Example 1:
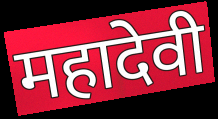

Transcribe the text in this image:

महादेवी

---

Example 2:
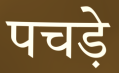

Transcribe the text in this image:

पचड़े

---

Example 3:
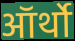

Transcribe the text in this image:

ऑर्थो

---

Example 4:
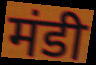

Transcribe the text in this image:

मंडी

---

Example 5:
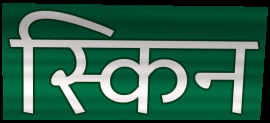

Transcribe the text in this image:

स्‍किन